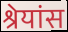
श्रेयांस